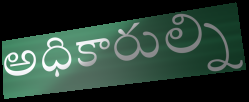
అధికారుల్ని